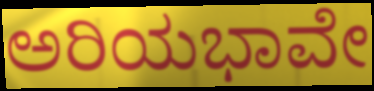
ಅರಿಯಭಾವೇ